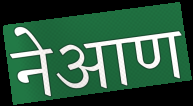
नेआण